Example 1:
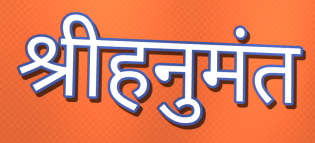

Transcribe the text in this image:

श्रीहनुमंत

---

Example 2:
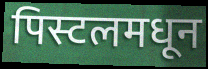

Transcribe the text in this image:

पिस्टलमधून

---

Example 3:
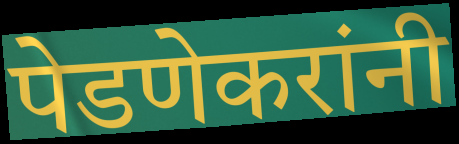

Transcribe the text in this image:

पेडणेकरांनी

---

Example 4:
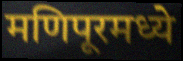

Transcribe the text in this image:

मणिपूरमध्ये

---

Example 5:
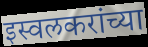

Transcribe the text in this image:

इस्वलकरांच्या